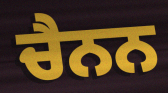
ਚੈਨਨ